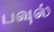
பவுல்